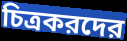
চিত্রকরদের